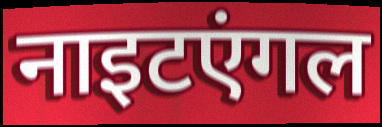
नाइटएंगल